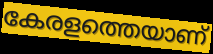
കേരളത്തെയാണ്